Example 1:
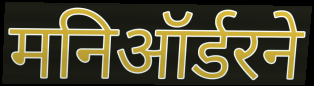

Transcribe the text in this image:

मनिऑर्डरने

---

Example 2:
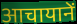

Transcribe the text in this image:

आचायानें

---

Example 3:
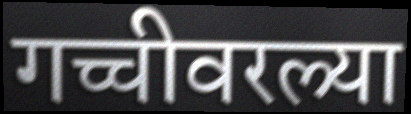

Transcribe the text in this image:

गच्चीवरल्या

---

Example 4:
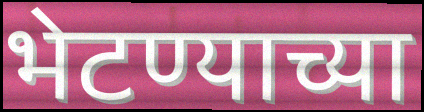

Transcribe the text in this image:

भेटण्याच्या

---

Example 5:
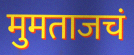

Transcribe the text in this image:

मुमताजचं